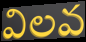
విలవ